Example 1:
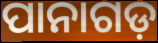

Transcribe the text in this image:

ପାନାଗଡ଼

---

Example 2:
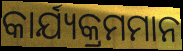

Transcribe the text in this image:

କାର୍ଯ୍ୟକ୍ରମମାନ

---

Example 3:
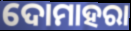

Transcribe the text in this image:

ଦୋମାହରା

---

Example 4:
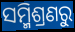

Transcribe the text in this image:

ସମ୍ମିଶ୍ରଣରୁ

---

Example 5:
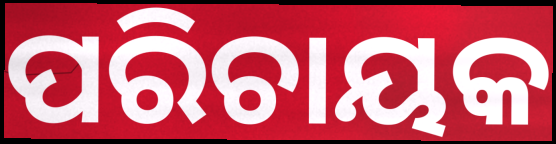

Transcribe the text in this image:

ପରିଚାୟକ